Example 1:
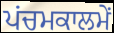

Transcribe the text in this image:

ਪਂਚਮਕਾਲਮੇਂ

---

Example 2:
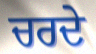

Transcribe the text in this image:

ਚਰਦੇ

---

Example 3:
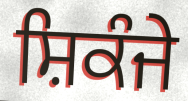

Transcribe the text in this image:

ਸ਼ਿਕੰਜੇ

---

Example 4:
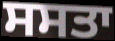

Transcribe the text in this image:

ਸਸਤਾ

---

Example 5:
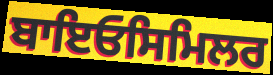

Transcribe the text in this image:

ਬਾਇਓਸਿਮਿਲਰ